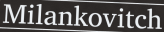
Milankovitch